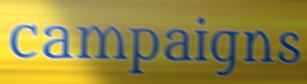
campaigns